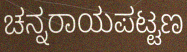
ಚನ್ನರಾಯಪಟ್ಟಣ